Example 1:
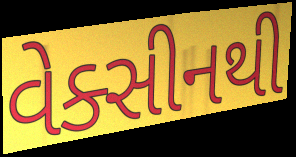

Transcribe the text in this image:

વેક્સીનથી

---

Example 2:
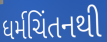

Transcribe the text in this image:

ધર્મચિંતનથી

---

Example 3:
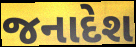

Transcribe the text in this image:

જનાદેશ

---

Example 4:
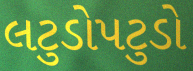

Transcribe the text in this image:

લટુડોપટુડો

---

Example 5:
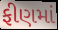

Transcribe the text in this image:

ફીણમાં